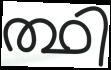
ത്ഥി